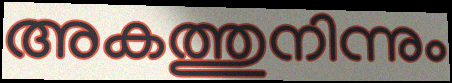
അകത്തുനിന്നും